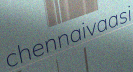
chennaivaasi